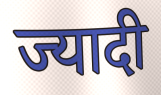
ज्यादी